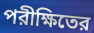
পরীক্ষিতের